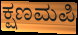
ಕ್ಷಣಮಪಿ